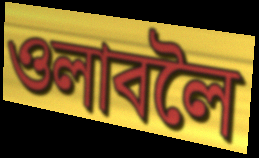
ওলাবলৈ